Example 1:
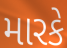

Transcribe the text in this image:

મારકે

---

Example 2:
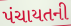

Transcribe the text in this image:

પંચાયતની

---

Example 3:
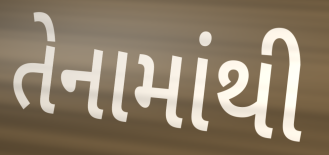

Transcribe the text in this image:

તેનામાંથી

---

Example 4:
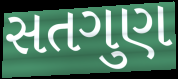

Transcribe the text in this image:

સતગુણ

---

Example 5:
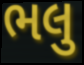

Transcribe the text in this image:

ભલુ